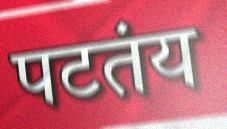
पटतंय